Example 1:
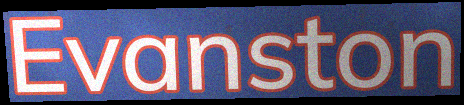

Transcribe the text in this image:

Evanston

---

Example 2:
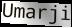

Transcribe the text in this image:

Umarji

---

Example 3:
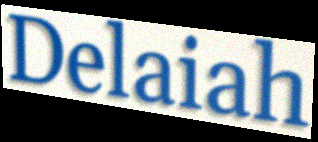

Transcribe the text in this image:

Delaiah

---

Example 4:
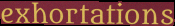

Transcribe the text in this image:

exhortations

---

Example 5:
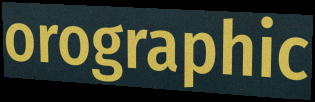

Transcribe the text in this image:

orographic